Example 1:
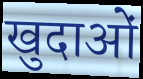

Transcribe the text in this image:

खुदाओं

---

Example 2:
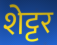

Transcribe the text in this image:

शेट्टर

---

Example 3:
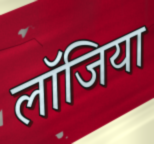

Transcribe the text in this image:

लॉजिया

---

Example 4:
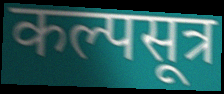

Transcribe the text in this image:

कल्पसूत्र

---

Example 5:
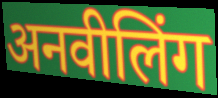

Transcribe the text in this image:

अनवीलिंग